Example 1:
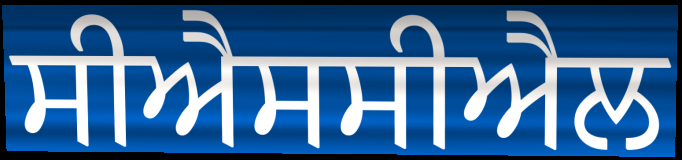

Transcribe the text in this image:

ਸੀਐਸਸੀਐਲ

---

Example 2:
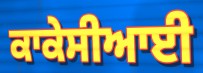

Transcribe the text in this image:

ਕਾਕੇਸੀਆਈ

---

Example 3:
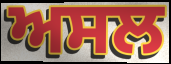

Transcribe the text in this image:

ਅਸਲ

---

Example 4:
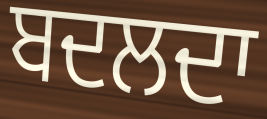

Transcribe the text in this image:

ਬਦਲਦਾ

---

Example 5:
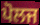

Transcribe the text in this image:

ਪੋਲਜ